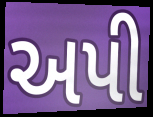
અપી